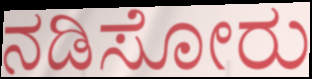
ನಡಿಸೋರು